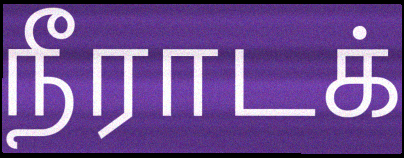
நீராடக்